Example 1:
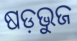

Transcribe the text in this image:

ଷଡ଼ଭୁଜ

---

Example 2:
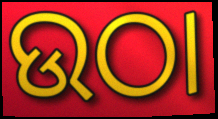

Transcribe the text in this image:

ଉଠା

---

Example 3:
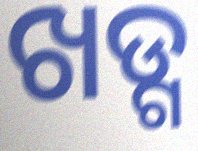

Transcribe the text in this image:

ଖଡ୍ଗ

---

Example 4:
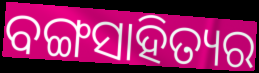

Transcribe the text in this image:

ବଙ୍ଗସାହିତ୍ୟର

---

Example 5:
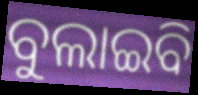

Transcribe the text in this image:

ବୁଲାଇବି